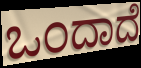
ಒಂದಾದೆ